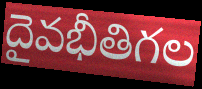
దైవభీతిగల